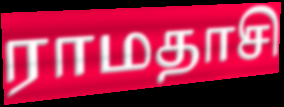
ராமதாசி